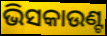
ଭିସକାଉଣ୍ଟ